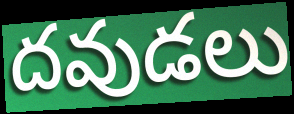
దవుడలు